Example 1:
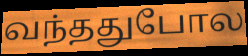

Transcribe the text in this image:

வந்ததுபோல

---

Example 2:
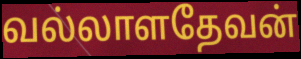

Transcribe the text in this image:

வல்லாளதேவன்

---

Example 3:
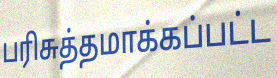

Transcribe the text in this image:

பரிசுத்தமாக்கப்பட்ட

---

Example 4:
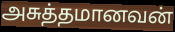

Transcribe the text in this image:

அசுத்தமானவன்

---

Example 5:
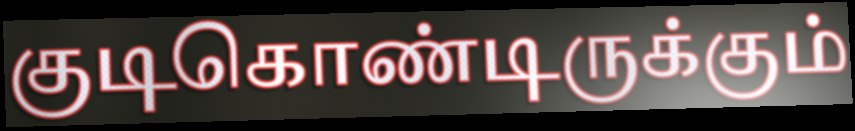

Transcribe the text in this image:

குடிகொண்டிருக்கும்